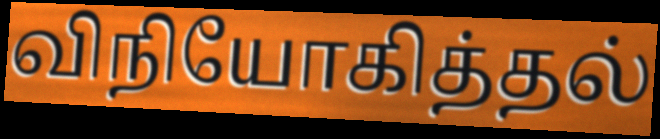
விநியோகித்தல்